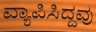
ವ್ಯಾಪಿಸಿದ್ದವು